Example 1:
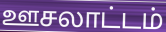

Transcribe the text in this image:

ஊசலாட்டம்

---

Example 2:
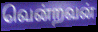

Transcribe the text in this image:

வென்றவன்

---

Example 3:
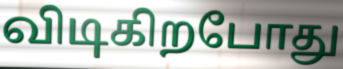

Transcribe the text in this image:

விடிகிறபோது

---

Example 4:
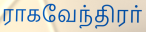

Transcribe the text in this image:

ராகவேந்திரர்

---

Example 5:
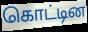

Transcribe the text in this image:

கொட்டின